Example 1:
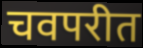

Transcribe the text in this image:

चवपरीत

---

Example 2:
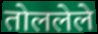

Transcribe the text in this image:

तोललेले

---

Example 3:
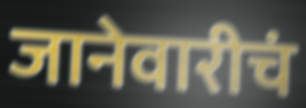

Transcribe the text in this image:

जानेवारीचं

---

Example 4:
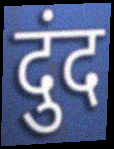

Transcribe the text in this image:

दुंद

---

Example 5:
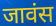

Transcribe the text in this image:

जावंस